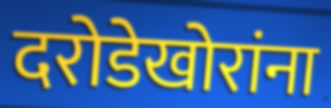
दरोडेखोरांना